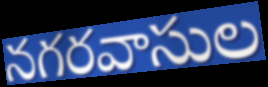
నగరవాసుల